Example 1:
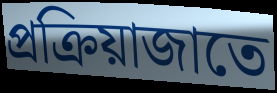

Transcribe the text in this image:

প্রক্রিয়াজাতে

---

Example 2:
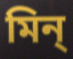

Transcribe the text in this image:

মিন্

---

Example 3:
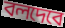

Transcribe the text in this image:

বলদেবে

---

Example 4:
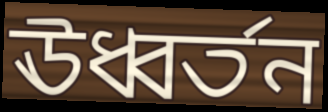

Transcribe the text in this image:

ঊধ্বর্তন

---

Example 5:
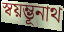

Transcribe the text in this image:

স্বয়ম্ভূনাথ